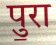
पु॒रा